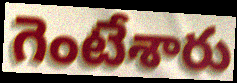
గెంటేశారు